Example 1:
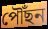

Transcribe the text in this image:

পৌঁছন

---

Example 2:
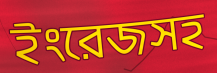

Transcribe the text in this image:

ইংরেজসহ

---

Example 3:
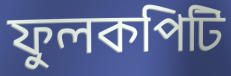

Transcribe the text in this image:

ফুলকপিটি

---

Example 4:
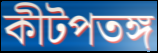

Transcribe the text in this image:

কীটপতঙ্গ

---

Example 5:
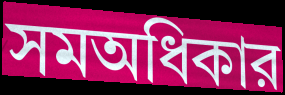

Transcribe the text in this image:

সমঅধিকার